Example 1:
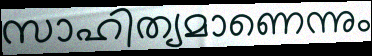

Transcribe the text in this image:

സാഹിത്യമാണെന്നും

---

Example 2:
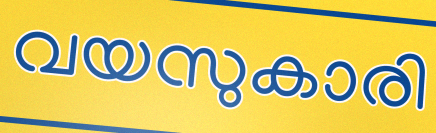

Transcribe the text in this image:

വയസുകാരി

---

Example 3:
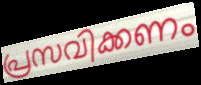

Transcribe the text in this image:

പ്രസവിക്കണം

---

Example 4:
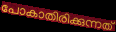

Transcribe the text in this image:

പോകാതിരിക്കുന്നത്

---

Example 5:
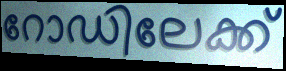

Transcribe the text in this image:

റോഡിലേക്ക്